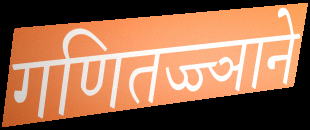
गणितज्ज्ञाने